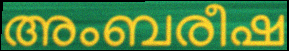
അംബരീഷ